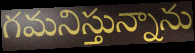
గమనిస్తున్నాను